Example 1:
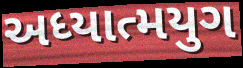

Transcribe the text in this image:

અધ્યાત્મયુગ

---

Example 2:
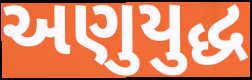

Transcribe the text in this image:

અણુયુદ્ધ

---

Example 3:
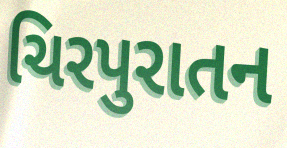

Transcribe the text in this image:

ચિરપુરાતન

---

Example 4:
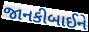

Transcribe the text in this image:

જાનકીબાઈને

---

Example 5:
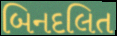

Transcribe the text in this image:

બિનદલિત